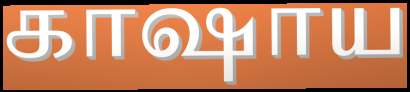
காஷாய